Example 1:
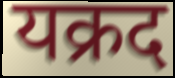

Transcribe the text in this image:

यक्रद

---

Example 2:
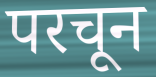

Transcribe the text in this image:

परचून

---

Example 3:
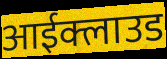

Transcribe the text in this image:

आईक्लाउड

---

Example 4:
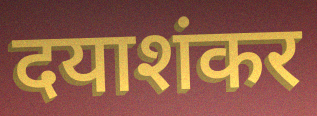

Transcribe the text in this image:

दयाशंकर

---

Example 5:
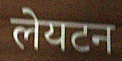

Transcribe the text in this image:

लेयटन